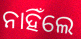
ନାହିଁଲେ